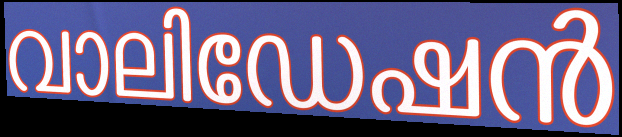
വാലിഡേഷൻ